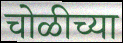
चोळीच्या